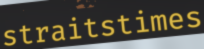
straitstimes